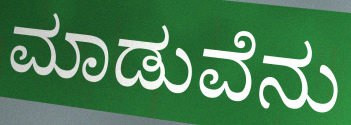
ಮಾಡುವೆನು